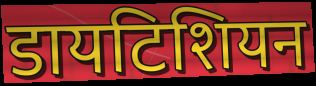
डायटिशियन